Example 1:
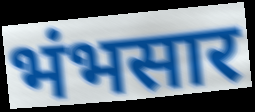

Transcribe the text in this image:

भंभसार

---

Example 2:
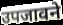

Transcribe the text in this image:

उपजावने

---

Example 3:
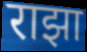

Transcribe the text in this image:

राझा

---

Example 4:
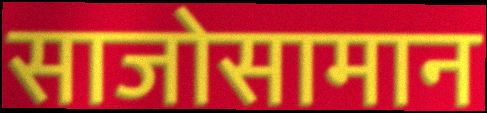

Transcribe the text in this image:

साजोसामान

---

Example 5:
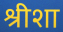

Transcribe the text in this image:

श्रीशा